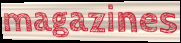
magazines